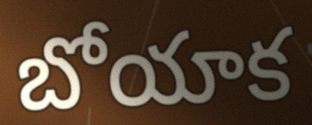
బోయాక